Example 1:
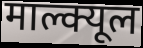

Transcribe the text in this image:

माल्क्यूल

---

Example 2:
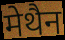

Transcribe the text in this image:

मेथैन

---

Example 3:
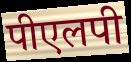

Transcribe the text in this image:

पीएलपी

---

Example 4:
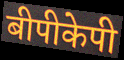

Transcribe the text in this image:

बीपीकेपी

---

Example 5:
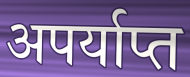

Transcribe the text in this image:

अपर्याप्त